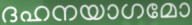
ദഹനയാഗമോ